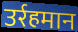
उर्रहमान